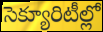
సెక్యూరిటీల్లో